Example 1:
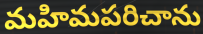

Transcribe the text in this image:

మహిమపరిచాను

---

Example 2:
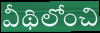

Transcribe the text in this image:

వీథిలోంచి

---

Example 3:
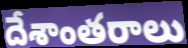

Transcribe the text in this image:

దేశాంతరాలు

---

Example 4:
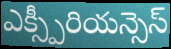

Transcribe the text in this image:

ఎక్స్పీరియన్సెస్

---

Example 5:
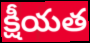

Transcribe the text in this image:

క్షీయత